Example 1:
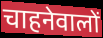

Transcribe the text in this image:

चाहनेवालों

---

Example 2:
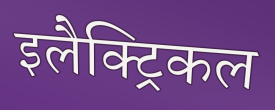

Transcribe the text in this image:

इलैक्ट्रिकल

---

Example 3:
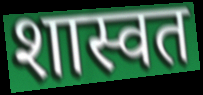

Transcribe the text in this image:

शास्वत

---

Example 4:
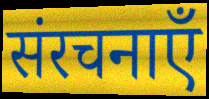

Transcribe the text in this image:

संरचनाएँ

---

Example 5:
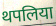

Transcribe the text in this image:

थपलिया